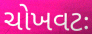
ચોખવટઃ